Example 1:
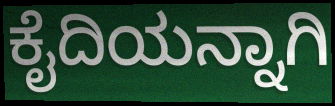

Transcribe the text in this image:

ಕೈದಿಯನ್ನಾಗಿ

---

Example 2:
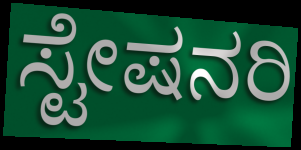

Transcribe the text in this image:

ಸ್ಟೇಷನರಿ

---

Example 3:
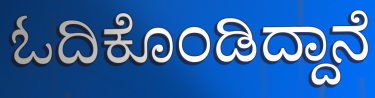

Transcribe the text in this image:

ಓದಿಕೊಂಡಿದ್ದಾನೆ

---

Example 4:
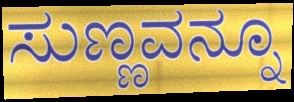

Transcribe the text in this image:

ಸುಣ್ಣವನ್ನೂ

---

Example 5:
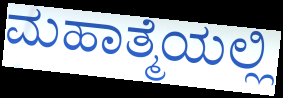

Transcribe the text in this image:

ಮಹಾತ್ಮೆಯಲ್ಲಿ